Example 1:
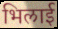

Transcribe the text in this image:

भिलाई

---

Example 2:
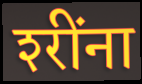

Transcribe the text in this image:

श्रींना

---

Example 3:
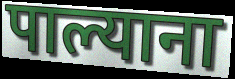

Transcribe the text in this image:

पाल्याना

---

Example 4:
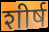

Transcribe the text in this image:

शीर्ष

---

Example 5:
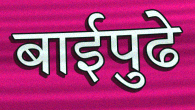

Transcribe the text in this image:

बाईपुढे